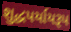
શુદ્ધપર્યાયરૂપ